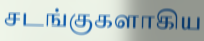
சடங்குகளாகிய